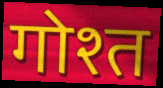
गोश्त